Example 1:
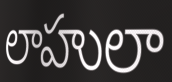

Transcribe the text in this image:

లాహులా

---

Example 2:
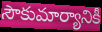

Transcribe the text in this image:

సౌకుమార్యానికీ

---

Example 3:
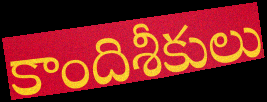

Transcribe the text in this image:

కాందిశీకులు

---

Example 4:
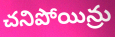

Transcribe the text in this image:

చనిపోయిన్రు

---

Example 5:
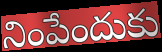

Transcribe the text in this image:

నింపేందుకు